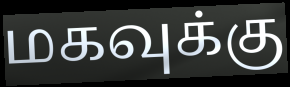
மகவுக்கு